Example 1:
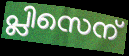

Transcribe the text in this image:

പ്ലിസെന്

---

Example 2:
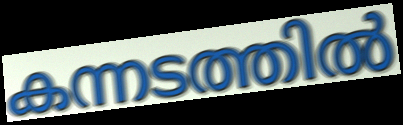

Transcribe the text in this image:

കന്നടത്തിൽ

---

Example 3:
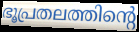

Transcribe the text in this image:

ഭൂപ്രതലത്തിന്റെ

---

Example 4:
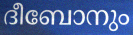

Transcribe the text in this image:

ദീബോനും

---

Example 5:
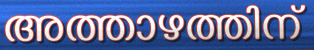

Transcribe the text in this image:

അത്താഴത്തിന്